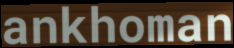
ankhoman